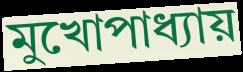
মুখোপাধ্যায়